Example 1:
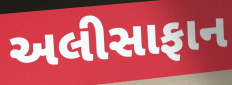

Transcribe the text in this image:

અલીસાફાન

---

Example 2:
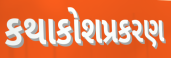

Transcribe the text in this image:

કથાકોશપ્રકરણ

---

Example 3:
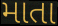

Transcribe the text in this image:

માતા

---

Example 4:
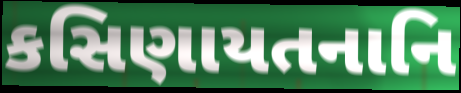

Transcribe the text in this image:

કસિણાયતનાનિ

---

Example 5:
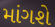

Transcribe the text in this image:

માંગશે